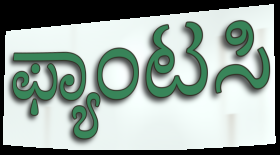
ಫ್ಯಾಂಟಸಿ